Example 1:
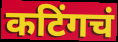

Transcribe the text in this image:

कटिंगचं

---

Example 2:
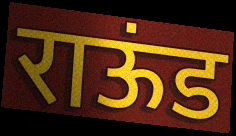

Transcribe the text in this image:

राऊंड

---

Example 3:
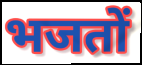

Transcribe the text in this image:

भजतों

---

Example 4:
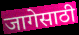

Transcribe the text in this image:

जागेसाठी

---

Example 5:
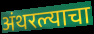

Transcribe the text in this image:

अंथरल्याचा